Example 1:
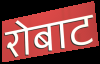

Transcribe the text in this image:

रोबाट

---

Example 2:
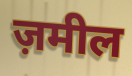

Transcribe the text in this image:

ज़मील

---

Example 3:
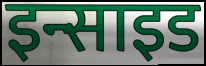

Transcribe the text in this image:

इन्साइड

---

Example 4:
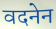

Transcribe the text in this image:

वदनेन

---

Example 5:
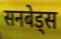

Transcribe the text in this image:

सनबेड्स